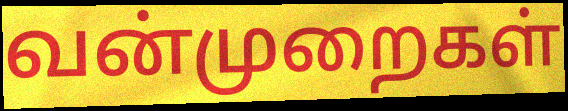
வன்முறைகள்